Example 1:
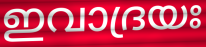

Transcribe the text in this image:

ഇവാദ്രയഃ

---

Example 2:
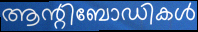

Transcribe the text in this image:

ആന്റിബോഡികൾ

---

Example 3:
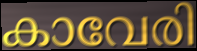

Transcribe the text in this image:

കാവേരി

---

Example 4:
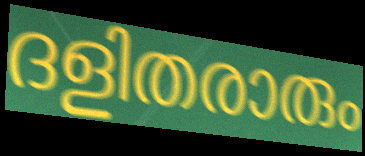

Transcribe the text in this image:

ദളിതരാരും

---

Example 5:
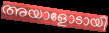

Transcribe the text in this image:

അയാളോടായി